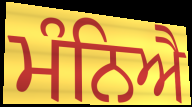
ਮੰਨਿਐ